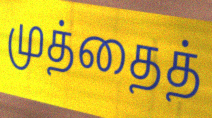
முத்தைத்